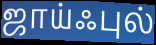
ஜாய்ஃபுல்